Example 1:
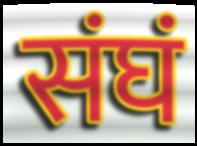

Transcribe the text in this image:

संघं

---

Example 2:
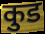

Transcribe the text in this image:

कुड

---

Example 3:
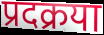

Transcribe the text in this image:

प्रदक्रया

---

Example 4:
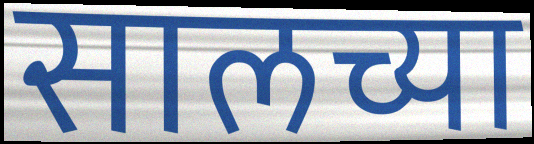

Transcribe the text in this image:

सालच्या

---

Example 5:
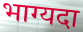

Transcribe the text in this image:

भाग्यदा